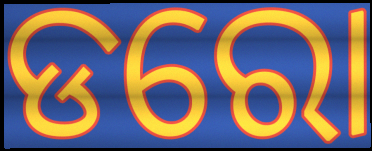
ଡରୋ